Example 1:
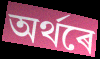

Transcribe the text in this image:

অৰ্থৰে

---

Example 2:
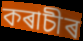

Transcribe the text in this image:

কৰাচীৰ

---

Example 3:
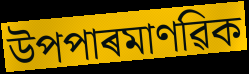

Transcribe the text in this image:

উপপাৰমাণৱিক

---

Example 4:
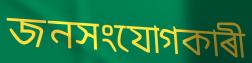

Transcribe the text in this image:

জনসংযোগকাৰী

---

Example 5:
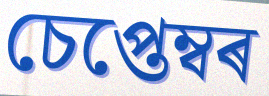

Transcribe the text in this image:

চেপ্তেম্বৰ